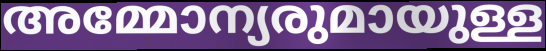
അമ്മോന്യരുമായുള്ള